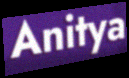
Anitya